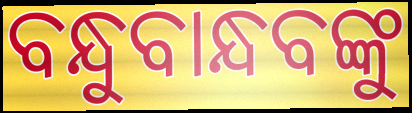
ବନ୍ଧୁବାନ୍ଧବଙ୍କୁ